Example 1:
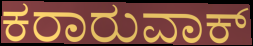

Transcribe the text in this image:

ಕರಾರುವಾಕ್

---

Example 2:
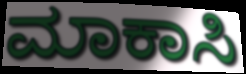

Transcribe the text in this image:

ಮಾಕಾಸಿ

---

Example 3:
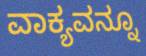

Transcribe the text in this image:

ವಾಕ್ಯವನ್ನೂ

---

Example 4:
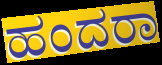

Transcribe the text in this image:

ಹಂದರಾ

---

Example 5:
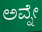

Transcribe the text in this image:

ಅವ್ನೇ